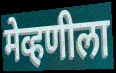
मेव्हणीला